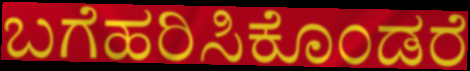
ಬಗೆಹರಿಸಿಕೊಂಡರೆ